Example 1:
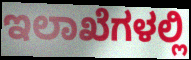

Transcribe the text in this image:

ಇಲಾಖೆಗಳಲ್ಲಿ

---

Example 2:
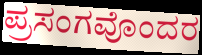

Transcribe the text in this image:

ಪ್ರಸಂಗವೊಂದರ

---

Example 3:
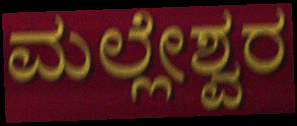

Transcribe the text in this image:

ಮಲ್ಲೇಶ್ವರ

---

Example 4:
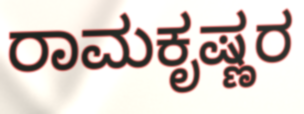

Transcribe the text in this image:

ರಾಮಕೃಷ್ಣರ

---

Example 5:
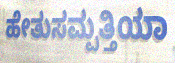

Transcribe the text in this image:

ಹೇತುಸಮ್ಪತ್ತಿಯಾ